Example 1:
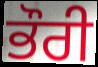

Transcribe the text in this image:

ਭੌਰੀ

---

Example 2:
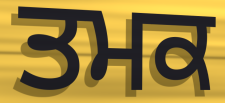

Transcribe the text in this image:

ਤਮਕ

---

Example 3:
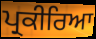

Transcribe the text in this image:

ਪ੍ਰਕੀਰਿਆ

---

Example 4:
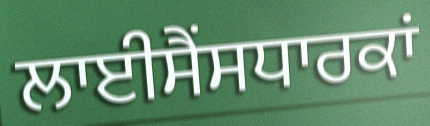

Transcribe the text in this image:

ਲਾਈਸੈਂਸਧਾਰਕਾਂ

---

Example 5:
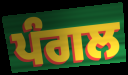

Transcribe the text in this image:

ਪੰਗਲ